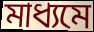
মাধ্যমে